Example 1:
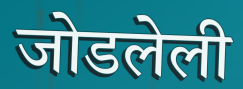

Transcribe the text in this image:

जोडलेली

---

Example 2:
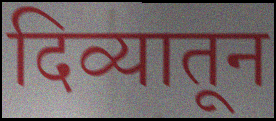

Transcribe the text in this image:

दिव्यातून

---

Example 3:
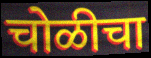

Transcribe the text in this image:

चोळीचा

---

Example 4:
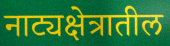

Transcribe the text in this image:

नाट्यक्षेत्रातील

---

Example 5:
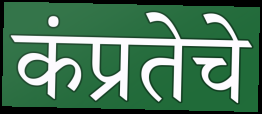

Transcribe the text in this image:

कंप्रतेचे